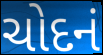
ચોદનં